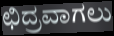
ಛಿದ್ರವಾಗಲು